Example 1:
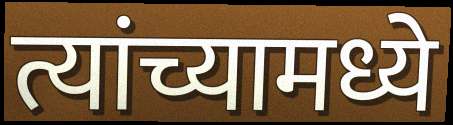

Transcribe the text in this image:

त्यांच्यामध्ये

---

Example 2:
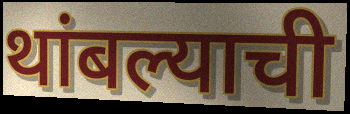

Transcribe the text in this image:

थांबल्याची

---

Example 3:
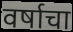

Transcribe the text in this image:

वर्षाचा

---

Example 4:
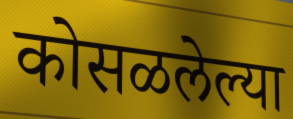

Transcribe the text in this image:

कोसळलेल्या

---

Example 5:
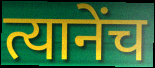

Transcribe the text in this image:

त्यानेंच